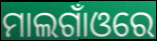
ମାଲଗାଁଓରେ